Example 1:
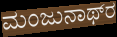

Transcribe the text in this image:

ಮಂಜುನಾಥ್‌ರ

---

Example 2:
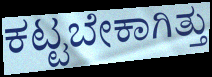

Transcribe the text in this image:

ಕಟ್ಟಬೇಕಾಗಿತ್ತು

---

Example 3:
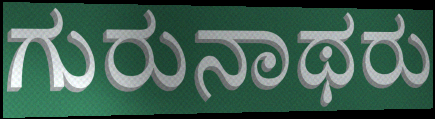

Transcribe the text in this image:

ಗುರುನಾಥರು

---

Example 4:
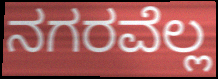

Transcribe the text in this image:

ನಗರವೆಲ್ಲ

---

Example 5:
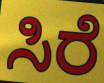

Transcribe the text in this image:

ಸಿರೆ